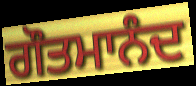
ਗੌਤਮਾਨੰਦ